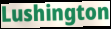
Lushington